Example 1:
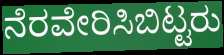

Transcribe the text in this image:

ನೆರವೇರಿಸಿಬಿಟ್ಟರು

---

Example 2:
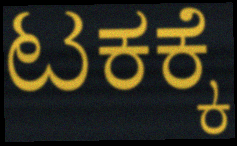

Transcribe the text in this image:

ಟಕಕ್ಕೆ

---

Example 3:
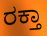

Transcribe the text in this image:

ರಕ್ತಾ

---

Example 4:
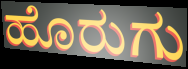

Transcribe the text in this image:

ಹೊರುಗು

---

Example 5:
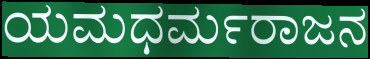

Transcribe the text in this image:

ಯಮಧರ್ಮರಾಜನ